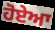
ਹੋਏਆ